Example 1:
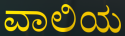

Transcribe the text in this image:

ವಾಲಿಯ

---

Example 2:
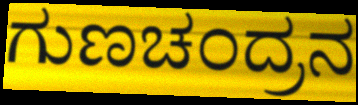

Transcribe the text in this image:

ಗುಣಚಂದ್ರನ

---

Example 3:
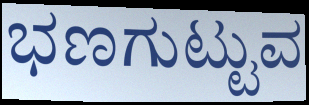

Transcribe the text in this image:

ಭಣಗುಟ್ಟುವ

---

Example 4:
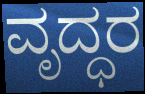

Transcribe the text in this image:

ವೃದ್ಧರ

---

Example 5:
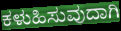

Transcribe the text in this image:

ಕಳುಹಿಸುವುದಾಗಿ